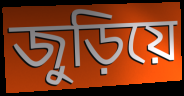
জুড়িয়ে